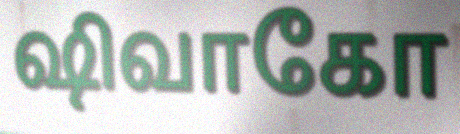
ஷிவாகோ